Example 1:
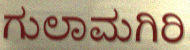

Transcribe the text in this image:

ಗುಲಾಮಗಿರಿ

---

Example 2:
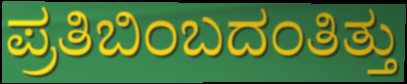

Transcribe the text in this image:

ಪ್ರತಿಬಿಂಬದಂತಿತ್ತು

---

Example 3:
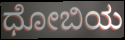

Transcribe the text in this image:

ಧೋಬಿಯ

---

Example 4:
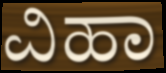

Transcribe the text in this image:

ವಿಹಾ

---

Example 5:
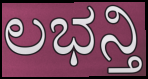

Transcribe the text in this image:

ಲಭನ್ತಿ